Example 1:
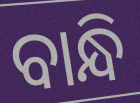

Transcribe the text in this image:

ବାନ୍ଧି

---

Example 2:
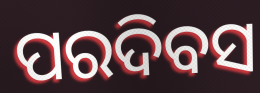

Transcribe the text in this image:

ପରଦିବସ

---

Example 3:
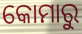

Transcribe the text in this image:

କୋମାରୁ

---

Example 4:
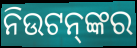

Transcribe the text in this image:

ନିଉଟନ୍‌ଙ୍କର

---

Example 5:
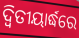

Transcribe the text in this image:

ଦ୍ବିତୀୟାର୍ଦ୍ଧରେ